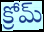
క్రోమ్